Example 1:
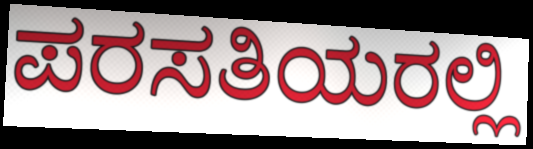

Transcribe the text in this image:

ಪರಸತಿಯರಲ್ಲಿ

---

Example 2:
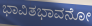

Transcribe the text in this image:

ಭಾವಿತಭಾವನೋ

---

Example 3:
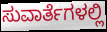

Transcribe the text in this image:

ಸುವಾರ್ತೆಗಳಲ್ಲಿ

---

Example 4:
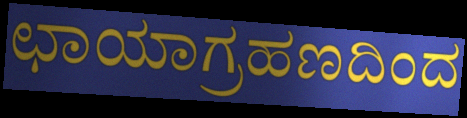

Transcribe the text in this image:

ಛಾಯಾಗ್ರಹಣದಿಂದ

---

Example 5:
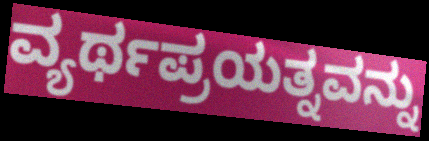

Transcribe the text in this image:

ವ್ಯರ್ಥಪ್ರಯತ್ನವನ್ನು